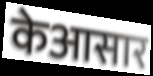
केआसार